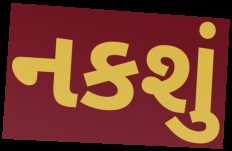
નકશું